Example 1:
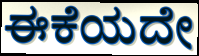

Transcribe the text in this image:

ಈಕೆಯದೇ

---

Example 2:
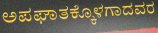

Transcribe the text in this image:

ಅಪಘಾತಕ್ಕೊಳಗಾದವರ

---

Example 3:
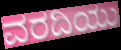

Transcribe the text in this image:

ವರದಿಯು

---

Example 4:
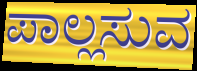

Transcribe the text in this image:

ಪಾಲ್ಲಸುವ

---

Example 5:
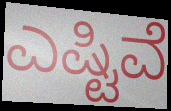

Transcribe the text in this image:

ಎಷ್ಟಿವೆ